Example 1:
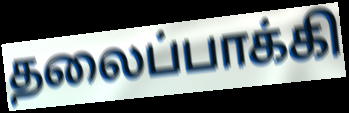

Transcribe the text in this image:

தலைப்பாக்கி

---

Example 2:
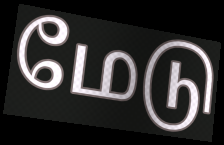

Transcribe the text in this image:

மேடு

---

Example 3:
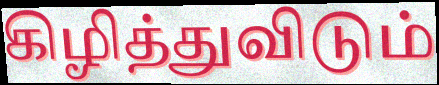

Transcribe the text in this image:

கிழித்துவிடும்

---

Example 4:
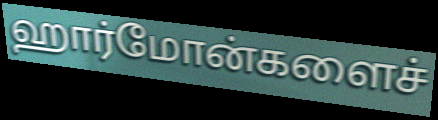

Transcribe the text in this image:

ஹார்மோன்களைச்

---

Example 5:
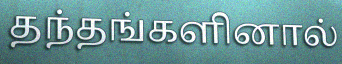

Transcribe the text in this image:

தந்தங்களினால்